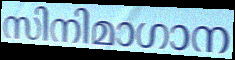
സിനിമാഗാന